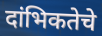
दांभिकतेचे